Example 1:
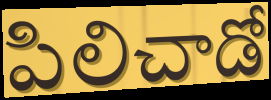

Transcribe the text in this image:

పిలిచాడో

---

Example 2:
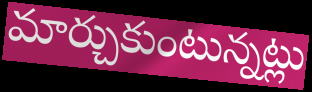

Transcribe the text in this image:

మార్చుకుంటున్నట్లు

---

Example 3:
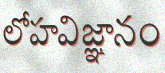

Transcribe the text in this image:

లోహవిజ్ఞానం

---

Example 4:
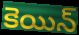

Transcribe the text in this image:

కెయిన్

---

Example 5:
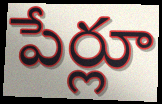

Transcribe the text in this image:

పేర్లూ